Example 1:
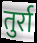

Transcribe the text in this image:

तुर्रा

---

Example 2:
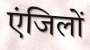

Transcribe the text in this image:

एंजिलों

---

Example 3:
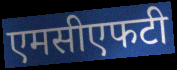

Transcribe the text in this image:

एमसीएफटी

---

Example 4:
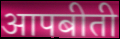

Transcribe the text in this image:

आपबीती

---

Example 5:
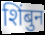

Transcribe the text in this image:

शिंबुन